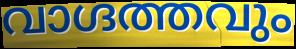
വാഗ്ദത്തവും